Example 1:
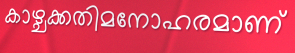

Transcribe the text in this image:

കാഴ്ചക്കതിമനോഹരമാണ്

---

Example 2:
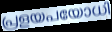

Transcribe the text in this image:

പ്രളയപയോധി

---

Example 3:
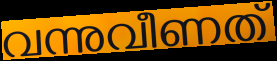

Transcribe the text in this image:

വന്നുവീണത്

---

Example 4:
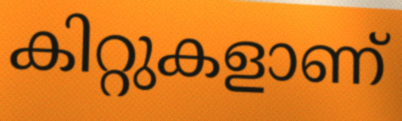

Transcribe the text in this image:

കിറ്റുകളാണ്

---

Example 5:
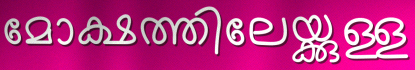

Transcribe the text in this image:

മോക്ഷത്തിലേയ്ക്കുള്ള